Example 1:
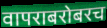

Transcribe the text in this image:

वापराबरोबरच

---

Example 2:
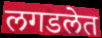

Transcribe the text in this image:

लगडलेत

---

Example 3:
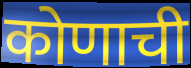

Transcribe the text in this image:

कोणाची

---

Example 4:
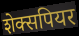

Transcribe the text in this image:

शेक्सपियर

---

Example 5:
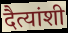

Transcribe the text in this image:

दैत्यांशी